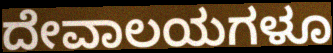
ದೇವಾಲಯಗಳೂ